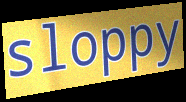
sloppy